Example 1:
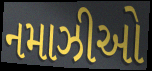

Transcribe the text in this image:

નમાઝીઓ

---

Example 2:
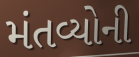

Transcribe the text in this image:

મંતવ્યોની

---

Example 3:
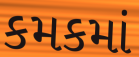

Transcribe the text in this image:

કમકમાં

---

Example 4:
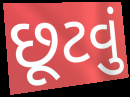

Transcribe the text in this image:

છૂટવું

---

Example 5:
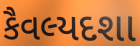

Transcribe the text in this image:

કૈવલ્યદશા